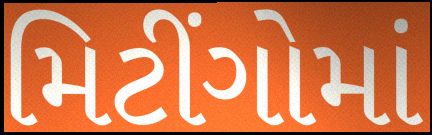
મિટીંગોમાં